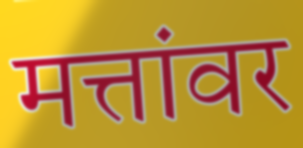
मत्तांवर